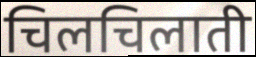
चिलचिलाती